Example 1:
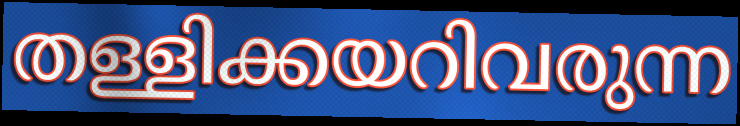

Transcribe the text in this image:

തള്ളിക്കയറിവരുന്ന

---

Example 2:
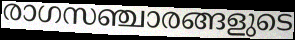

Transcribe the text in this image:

രാഗസഞ്ചാരങ്ങളുടെ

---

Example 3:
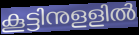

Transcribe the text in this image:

കൂട്ടിനുളളിൽ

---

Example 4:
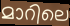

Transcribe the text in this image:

മാറിലെ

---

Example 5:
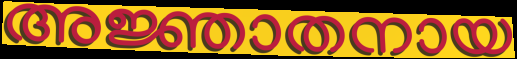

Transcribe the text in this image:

അജ്ഞാതനായ